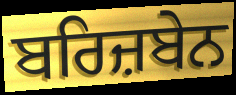
ਬਰਿਜ਼ਬੇਨ